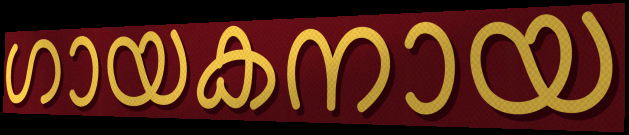
ഗായകനായ